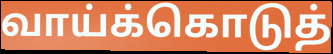
வாய்க்கொடுத்